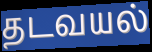
தடவயல்